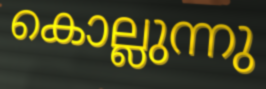
കൊല്ലുന്നു